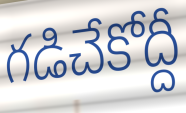
గడిచేకోద్దీ